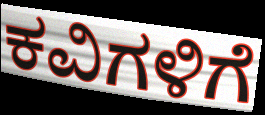
ಕವಿಗಳಿಗೆ